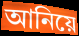
আনিয়ে